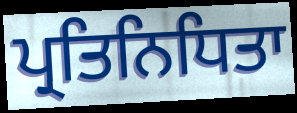
ਪ੍ਰਤਿਨਿਧਿਤਾ